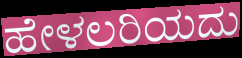
ಹೇಳಲರಿಯದು